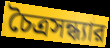
চৈত্রসন্ধ্যার